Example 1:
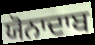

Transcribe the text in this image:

ਯੋਨਾਦਾਬ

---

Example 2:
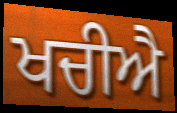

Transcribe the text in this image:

ਖਚੀਐ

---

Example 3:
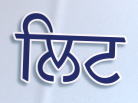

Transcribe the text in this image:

ਲਿਟ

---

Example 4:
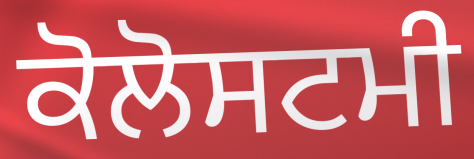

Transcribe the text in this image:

ਕੋਲੋਸਟਮੀ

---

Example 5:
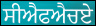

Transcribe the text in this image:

ਸੀਐਫਐਚਏ